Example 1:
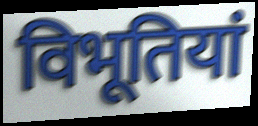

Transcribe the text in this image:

विभूतियां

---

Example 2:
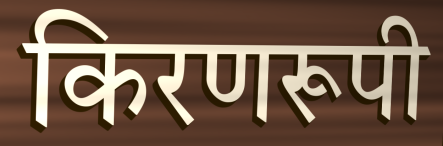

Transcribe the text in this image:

किरणरूपी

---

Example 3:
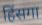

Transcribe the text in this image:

हिंसगा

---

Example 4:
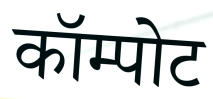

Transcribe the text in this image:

कॉम्पोट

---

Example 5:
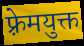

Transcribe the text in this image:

फ़्रेमयुक्त